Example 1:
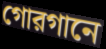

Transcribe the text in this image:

গোরগানে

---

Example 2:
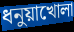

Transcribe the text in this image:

ধনুয়াখোলা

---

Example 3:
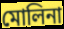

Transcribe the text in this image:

মোলিনা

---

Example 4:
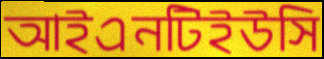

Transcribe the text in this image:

আইএনটিইউসি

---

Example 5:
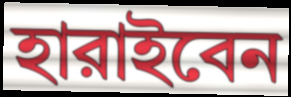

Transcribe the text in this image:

হারাইবেন